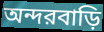
অন্দরবাড়ি